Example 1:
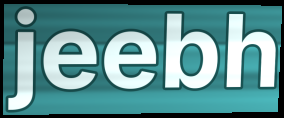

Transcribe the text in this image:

jeebh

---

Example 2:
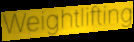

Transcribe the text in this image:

Weightlifting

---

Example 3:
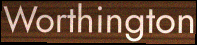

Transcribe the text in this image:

Worthington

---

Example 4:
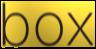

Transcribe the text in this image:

box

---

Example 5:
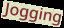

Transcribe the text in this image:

Jogging